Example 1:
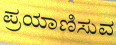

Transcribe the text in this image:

ಪ್ರಯಾಣಿಸುವ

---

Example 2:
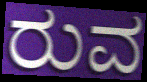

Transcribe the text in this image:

ರುವ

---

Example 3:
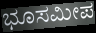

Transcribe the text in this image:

ಭೂಸಮೀಪ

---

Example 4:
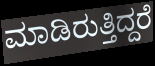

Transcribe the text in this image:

ಮಾಡಿರುತ್ತಿದ್ದರೆ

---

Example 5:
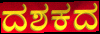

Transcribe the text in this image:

ದಶಕದ